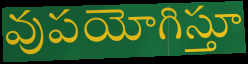
వుపయోగిస్తూ